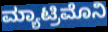
ಮ್ಯಾಟ್ರಿಮೊನಿ